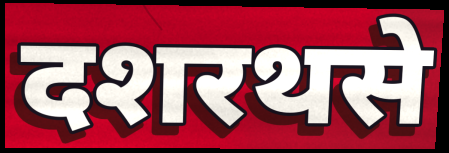
दशरथसे